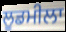
ਲੂਡਮੀਲਾ